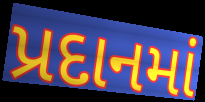
પ્રદાનમાં